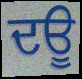
ਦਊ